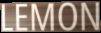
LEMON